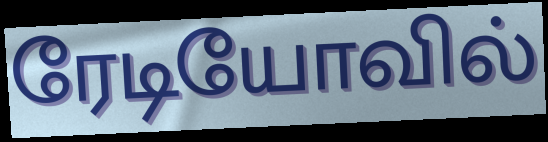
ரேடியோவில்